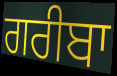
ਗਰੀਬਾ